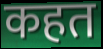
कहत